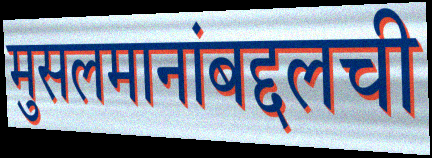
मुसलमानांबद्दलची